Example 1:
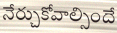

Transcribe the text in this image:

నేర్చుకోవాల్సిందే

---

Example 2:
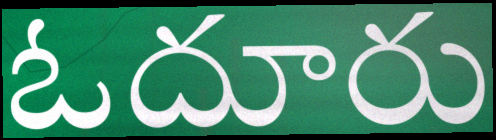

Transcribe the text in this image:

ఓదూరు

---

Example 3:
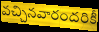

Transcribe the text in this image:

వచ్చినవారందరికీ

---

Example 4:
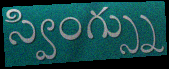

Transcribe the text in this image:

స్వింగ్స్ను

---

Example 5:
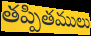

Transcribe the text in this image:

తప్పితములు